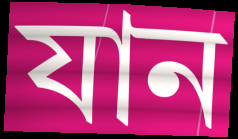
যান